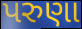
પરુણા